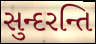
સુન્દરન્તિ